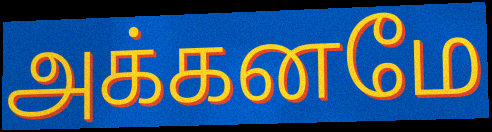
அக்கனமே